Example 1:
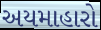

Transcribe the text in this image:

અયમાહારો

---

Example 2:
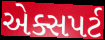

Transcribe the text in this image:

એક્સપર્ટ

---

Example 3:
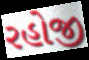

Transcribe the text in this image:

રહોજી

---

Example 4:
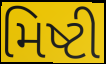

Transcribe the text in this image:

મિષ્ટી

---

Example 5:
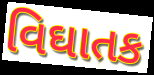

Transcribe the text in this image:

વિઘાતક